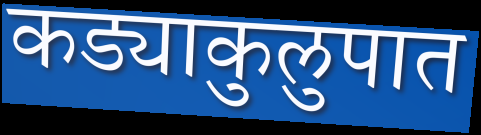
कड्याकुलुपात